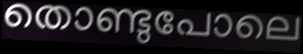
തൊണ്ടുപോലെ